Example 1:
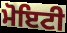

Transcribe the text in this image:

ਮੋਇਟੀ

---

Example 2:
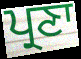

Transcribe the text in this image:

ਪ੍ਰਣਾ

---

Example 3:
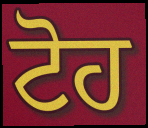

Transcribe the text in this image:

ਟੋਹ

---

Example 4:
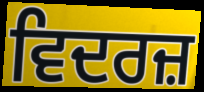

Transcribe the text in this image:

ਵਿਦਰਜ਼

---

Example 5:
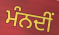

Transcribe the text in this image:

ਮੰਨਦੀਂ